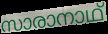
സാരാനാഥ്